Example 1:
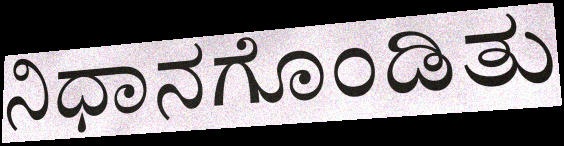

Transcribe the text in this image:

ನಿಧಾನಗೊಂಡಿತು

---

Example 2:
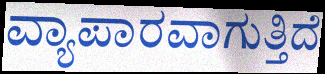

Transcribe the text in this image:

ವ್ಯಾಪಾರವಾಗುತ್ತಿದೆ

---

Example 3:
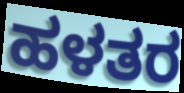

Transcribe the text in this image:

ಹಳತರ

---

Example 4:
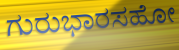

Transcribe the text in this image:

ಗುರುಭಾರಸಹೋ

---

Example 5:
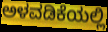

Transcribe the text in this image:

ಅಳವಡಿಕೆಯಲ್ಲಿ